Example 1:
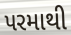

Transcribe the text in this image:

પરમાથી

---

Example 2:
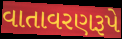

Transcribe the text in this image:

વાતાવરણરૂપે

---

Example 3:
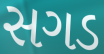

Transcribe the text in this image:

સગડ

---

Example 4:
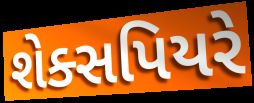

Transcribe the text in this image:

શેક્સપિયરે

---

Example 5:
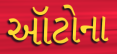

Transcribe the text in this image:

ઑટોના